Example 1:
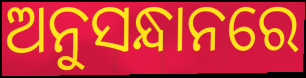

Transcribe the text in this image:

ଅନୁସନ୍ଧାନରେ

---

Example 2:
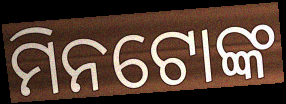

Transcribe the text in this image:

ମିନଟୋଙ୍କ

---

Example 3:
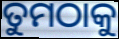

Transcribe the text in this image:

ତୁମଠାକୁ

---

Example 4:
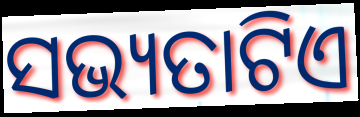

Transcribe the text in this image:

ସଭ୍ୟତାଟିଏ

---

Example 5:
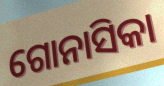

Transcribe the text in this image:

ଗୋନାସିକା